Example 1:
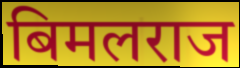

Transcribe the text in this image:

बिमलराज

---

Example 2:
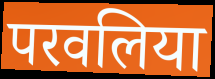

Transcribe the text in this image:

परवलिया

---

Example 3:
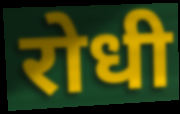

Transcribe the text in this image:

रोधी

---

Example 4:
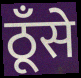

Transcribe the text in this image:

ठूँसे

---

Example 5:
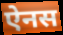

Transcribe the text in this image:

ऐनस